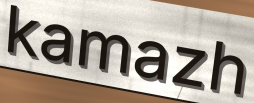
kamazh